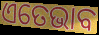
ଏତେଭାବ